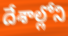
దేశాల్లోని